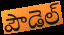
పౌడెల్